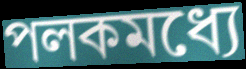
পলকমধ্যে